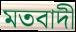
মতবাদী